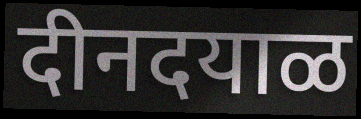
दीनदयाळ